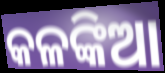
କଳଙ୍କିଆ